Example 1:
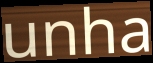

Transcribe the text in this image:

unha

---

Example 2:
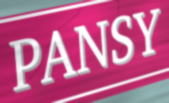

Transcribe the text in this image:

PANSY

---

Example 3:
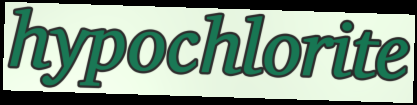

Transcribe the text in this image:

hypochlorite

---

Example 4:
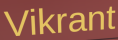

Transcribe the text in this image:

Vikrant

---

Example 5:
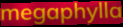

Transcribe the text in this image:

megaphylla